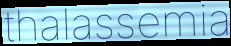
thalassemia